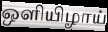
ஒளியிழாய்